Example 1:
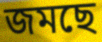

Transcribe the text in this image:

জমছে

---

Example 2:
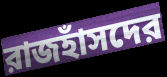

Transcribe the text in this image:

রাজহাঁসদের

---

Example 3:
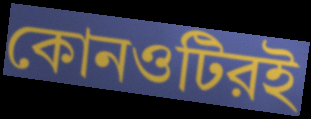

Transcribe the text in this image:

কোনওটিরই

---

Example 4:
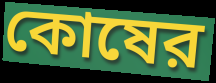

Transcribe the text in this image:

কোষের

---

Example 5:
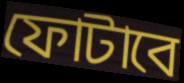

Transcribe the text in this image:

ফোটাবে